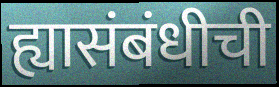
ह्यासंबंधीची